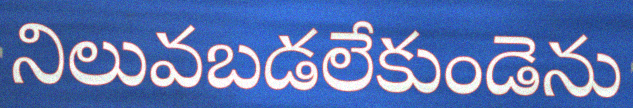
నిలువబడలేకుండెను